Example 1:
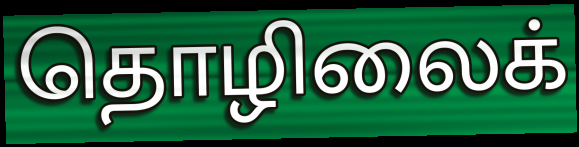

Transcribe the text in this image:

தொழிலைக்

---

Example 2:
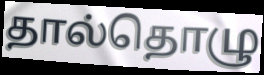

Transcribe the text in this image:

தால்தொழு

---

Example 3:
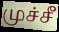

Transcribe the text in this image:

முச்சீ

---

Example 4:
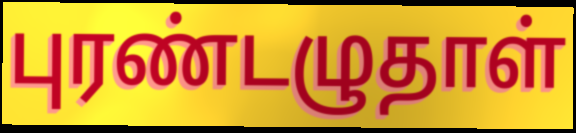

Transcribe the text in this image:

புரண்டழுதாள்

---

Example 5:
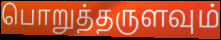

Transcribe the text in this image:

பொறுத்தருளவும்